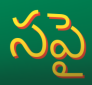
సపై